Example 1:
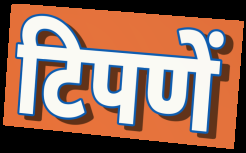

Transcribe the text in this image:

टिपणें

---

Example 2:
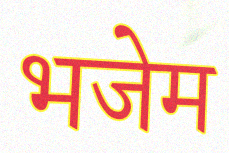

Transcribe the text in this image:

भजेम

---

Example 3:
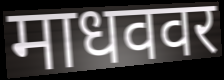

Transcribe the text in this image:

माधववर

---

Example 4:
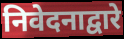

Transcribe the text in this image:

निवेदनाद्वारे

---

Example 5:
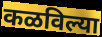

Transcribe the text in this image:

कळविल्या